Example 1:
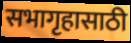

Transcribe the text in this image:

सभागृहासाठी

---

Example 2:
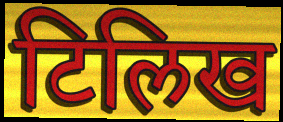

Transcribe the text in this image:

टिलिख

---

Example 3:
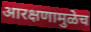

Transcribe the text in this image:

आरक्षणामुळेच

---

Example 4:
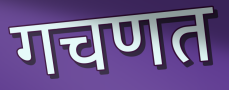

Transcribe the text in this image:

गचणत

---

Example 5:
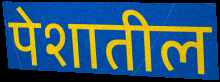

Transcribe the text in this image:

पेशातील